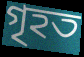
গৃহত